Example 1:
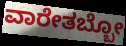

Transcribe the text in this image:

ವಾರೇತಬ್ಬೋ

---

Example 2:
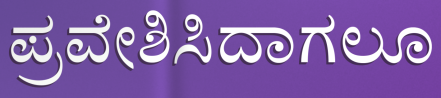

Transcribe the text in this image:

ಪ್ರವೇಶಿಸಿದಾಗಲೂ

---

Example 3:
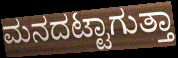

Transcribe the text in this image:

ಮನದಟ್ಟಾಗುತ್ತಾ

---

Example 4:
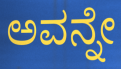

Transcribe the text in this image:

ಅವನ್ನೇ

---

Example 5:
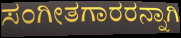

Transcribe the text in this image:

ಸಂಗೀತಗಾರರನ್ನಾಗಿ